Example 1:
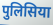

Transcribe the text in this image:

पुलिसिया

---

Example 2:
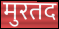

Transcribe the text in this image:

मुरतद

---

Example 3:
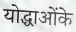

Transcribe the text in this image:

योद्धाओंके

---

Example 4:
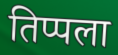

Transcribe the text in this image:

तिप्पला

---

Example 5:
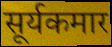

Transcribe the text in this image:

सूर्यकमार